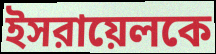
ইসরায়েলকে